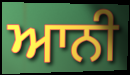
ਆਨੀ